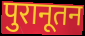
पुरानूतन